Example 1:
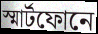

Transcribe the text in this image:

স্মার্টফোনে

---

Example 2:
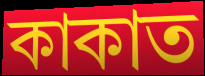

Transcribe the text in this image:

কাকাত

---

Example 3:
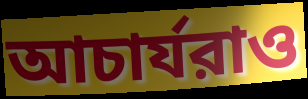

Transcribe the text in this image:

আচার্যরাও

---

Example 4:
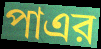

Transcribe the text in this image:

পাএর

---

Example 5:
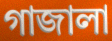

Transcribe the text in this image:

গাজালা